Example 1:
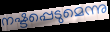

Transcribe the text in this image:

നഷ്ടപ്പെടുമെന്നു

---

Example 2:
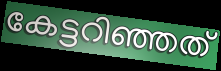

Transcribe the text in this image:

കേട്ടറിഞ്ഞത്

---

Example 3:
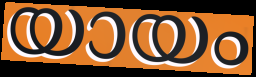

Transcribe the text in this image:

യായം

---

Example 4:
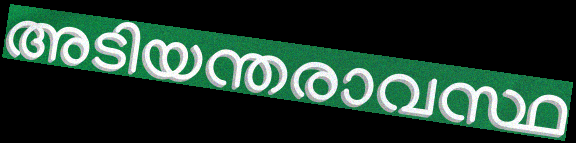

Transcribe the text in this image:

അടിയന്തരാവസ്ഥ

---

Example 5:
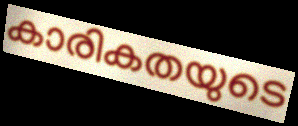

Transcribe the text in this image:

കാരികതയുടെ